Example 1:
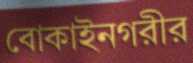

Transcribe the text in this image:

বোকাইনগরীর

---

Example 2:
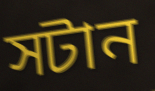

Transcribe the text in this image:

সটান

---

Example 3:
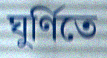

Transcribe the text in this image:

ঘুর্ণিতে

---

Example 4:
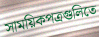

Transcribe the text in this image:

সাময়িকপত্রগুলিতে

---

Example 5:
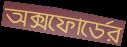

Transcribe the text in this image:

অক্সফোর্ডের